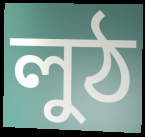
লুঠ